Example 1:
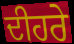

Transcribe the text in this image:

ਦੀਹਰੇ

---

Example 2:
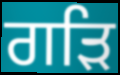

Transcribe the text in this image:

ਗੜਿ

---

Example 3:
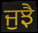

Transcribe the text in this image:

ਜੁਝੈ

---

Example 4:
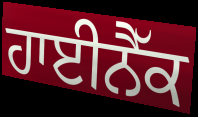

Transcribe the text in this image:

ਹਾਈਨੈੱਕ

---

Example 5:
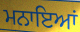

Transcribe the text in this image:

ਮਨਾਇਆਂ